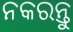
ନକରନ୍ତୁ